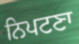
ਨਿਪਟਣਾ